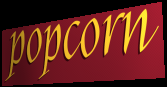
popcorn